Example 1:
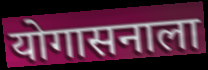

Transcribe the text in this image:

योगासनाला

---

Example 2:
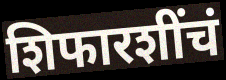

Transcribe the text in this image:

शिफारशींचं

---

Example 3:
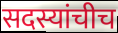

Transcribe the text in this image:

सदस्यांचीच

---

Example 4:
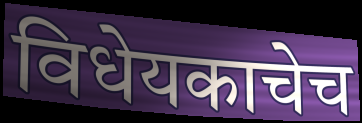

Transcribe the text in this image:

विधेयकाचेच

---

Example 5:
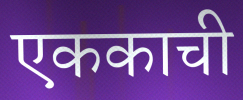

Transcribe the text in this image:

एककाची